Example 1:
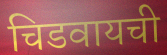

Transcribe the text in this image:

चिडवायची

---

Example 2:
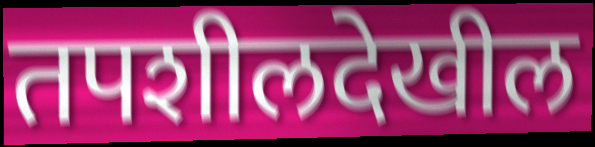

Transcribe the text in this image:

तपशीलदेखील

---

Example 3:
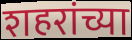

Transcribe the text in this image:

शहरांच्या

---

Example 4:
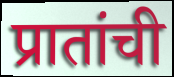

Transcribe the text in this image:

प्रातांची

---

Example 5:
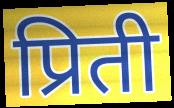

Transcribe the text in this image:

प्रिती